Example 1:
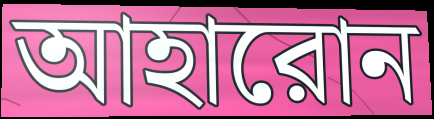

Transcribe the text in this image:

আহারোন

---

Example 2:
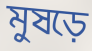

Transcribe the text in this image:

মুষড়ে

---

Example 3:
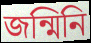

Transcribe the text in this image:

জন্মিনি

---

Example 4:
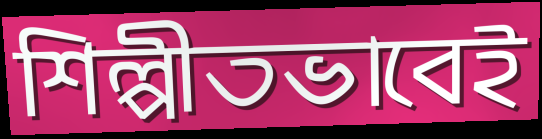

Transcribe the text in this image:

শিল্পীতভাবেই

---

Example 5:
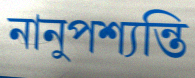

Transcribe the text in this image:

নানুপশ্যন্তি